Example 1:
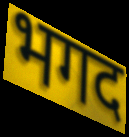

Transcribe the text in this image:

भगद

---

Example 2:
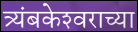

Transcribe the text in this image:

त्र्यंबकेश्वराच्या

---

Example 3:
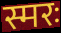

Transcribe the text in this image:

स्मरः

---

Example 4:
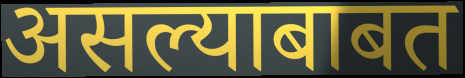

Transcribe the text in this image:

असल्याबाबत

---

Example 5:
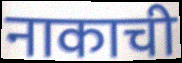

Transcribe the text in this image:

नाकाची